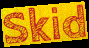
Skid